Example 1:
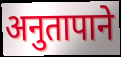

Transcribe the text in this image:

अनुतापाने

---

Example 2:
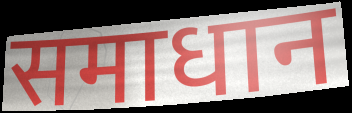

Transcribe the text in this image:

समाधान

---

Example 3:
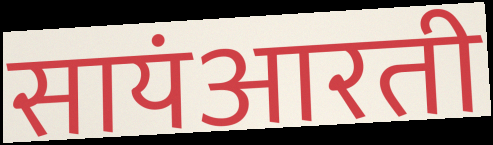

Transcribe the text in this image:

सायंआरती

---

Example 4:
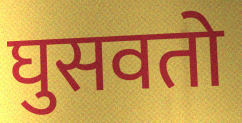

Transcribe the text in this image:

घुसवतो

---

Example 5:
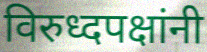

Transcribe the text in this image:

विरुध्दपक्षांनी